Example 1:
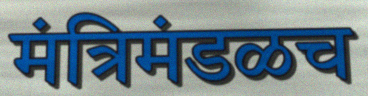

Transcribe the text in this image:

मंत्रिमंडळच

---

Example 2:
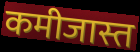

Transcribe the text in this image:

कमीजास्त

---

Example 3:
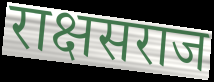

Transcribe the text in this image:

राक्षसराज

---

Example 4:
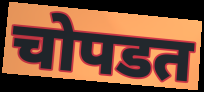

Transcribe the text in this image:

चोपडत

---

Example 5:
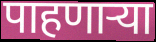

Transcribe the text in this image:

पाहणाऱ्या